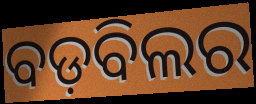
ବଡ଼ବିଲର